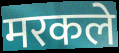
मरकले